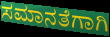
ಸಮಾನತೆಗಾಗಿ